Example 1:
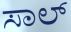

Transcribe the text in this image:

ಸಾಲ್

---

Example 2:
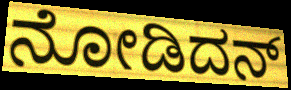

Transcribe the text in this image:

ನೋಡಿದನ್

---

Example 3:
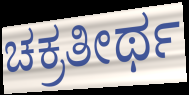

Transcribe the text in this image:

ಚಕ್ರತೀರ್ಥ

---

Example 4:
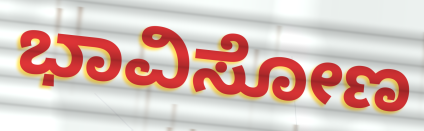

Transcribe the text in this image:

ಭಾವಿಸೋಣ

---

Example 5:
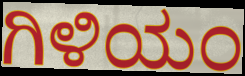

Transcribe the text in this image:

ಗಿಳಿಯಂ